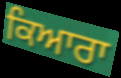
ਕਿਆਰਾ